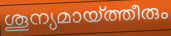
ശൂന്യമായ്ത്തീരും